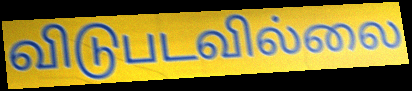
விடுபடவில்லை